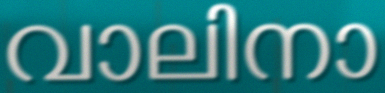
വാലിനാ